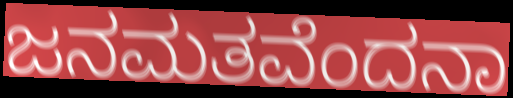
ಜನಮತವೆಂದನಾ